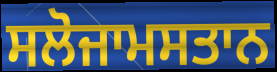
ਸਲੋਜਾਮਸਤਾਨ